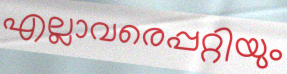
എല്ലാവരെപ്പറ്റിയും